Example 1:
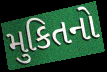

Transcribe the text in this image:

મુકિતનો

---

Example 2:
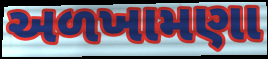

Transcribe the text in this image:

અળખામણા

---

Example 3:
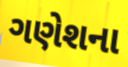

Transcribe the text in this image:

ગણેશના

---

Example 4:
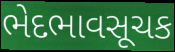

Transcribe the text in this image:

ભેદભાવસૂચક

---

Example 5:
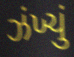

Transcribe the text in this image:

ઝંખ્યું